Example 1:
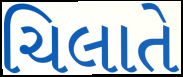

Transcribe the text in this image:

ચિલાતે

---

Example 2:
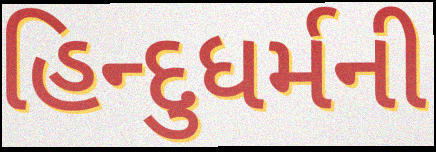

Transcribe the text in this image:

હિન્દુધર્મની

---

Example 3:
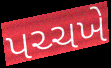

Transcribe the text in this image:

પચ્ચખે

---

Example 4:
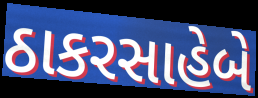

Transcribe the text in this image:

ઠાકરસાહેબે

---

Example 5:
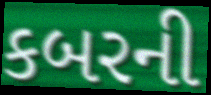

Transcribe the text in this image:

કબરની